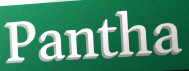
Pantha